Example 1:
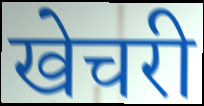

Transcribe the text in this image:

खेचरी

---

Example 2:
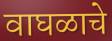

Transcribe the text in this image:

वाघळाचे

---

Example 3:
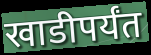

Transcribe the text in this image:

खाडीपर्यंत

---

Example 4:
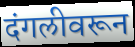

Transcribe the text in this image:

दंगलीवरून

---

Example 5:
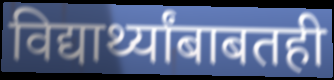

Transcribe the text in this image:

विद्यार्थ्यांबाबतही